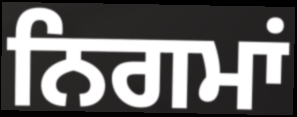
ਨਿਗਮਾਂ